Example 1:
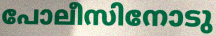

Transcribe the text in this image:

പോലീസിനോടു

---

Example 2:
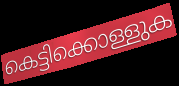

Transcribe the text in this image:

കെട്ടിക്കൊള്ളുക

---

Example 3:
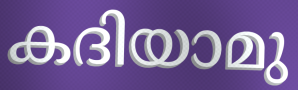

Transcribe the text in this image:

കദിയാമു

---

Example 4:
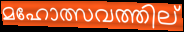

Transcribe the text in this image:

മഹോത്സവത്തില്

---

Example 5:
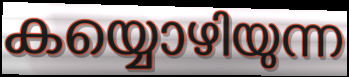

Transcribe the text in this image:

കയ്യൊഴിയുന്ന